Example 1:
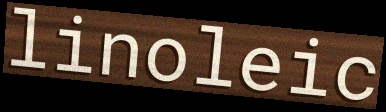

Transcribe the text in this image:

linoleic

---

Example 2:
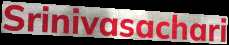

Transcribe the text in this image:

Srinivasachari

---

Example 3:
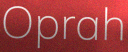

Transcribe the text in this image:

Oprah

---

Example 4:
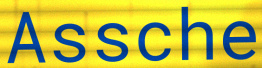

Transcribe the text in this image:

Assche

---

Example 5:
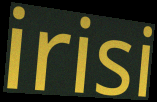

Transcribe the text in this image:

irisi